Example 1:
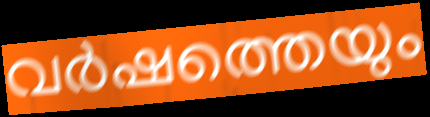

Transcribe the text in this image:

വർഷത്തെയും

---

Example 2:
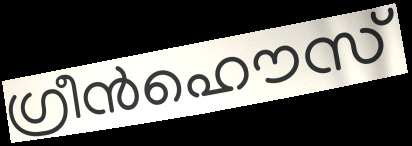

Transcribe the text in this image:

ഗ്രീൻഹൌസ്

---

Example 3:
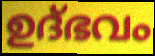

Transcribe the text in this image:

ഉദ്ഭവം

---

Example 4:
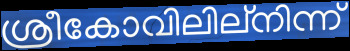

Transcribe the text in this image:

ശ്രീകോവിലില്നിന്ന്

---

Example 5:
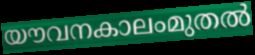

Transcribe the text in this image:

യൗവനകാലംമുതൽ